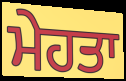
ਮੇਹਤਾ